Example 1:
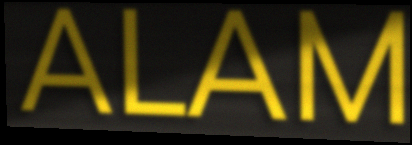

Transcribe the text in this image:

ALAM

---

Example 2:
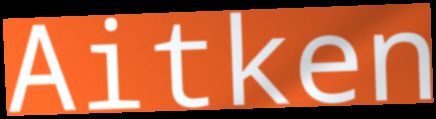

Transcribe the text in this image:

Aitken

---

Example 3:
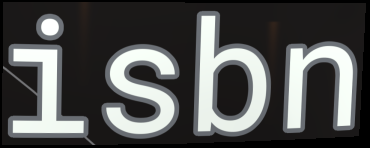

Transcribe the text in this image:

isbn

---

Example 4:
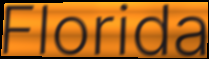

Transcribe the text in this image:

Florida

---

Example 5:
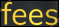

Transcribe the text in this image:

fees